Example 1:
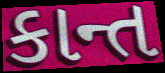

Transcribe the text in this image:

કાન્ત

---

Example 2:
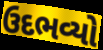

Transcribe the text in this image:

ઉદભવ્યો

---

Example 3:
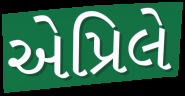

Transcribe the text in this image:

એપ્રિલે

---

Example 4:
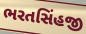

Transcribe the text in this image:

ભરતસિંહજી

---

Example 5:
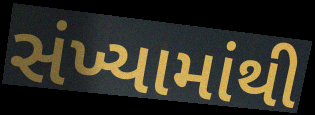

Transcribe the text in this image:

સંખ્યામાંથી